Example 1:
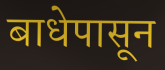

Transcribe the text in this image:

बाधेपासून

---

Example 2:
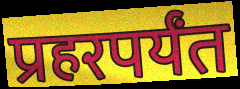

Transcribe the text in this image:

प्रहरपर्यंत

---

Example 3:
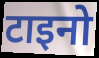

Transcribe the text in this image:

टाइनो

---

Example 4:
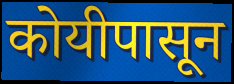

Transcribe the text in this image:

कोयीपासून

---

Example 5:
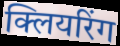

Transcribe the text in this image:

क्लियरिंग